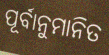
ପୂର୍ବାନୁମାନିତ